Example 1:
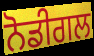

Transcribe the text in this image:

ਨੋਡੀਗਲ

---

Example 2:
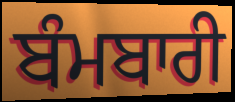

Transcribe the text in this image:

ਬੰਮਬਾਰੀ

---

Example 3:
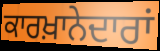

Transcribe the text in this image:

ਕਾਰਖ਼ਾਨੇਦਾਰਾਂ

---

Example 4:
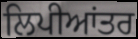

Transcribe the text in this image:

ਲਿਪੀਆਂਤਰ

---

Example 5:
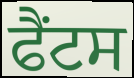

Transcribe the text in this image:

ਫੈਂਟਸ